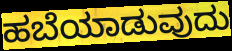
ಹಬೆಯಾಡುವುದು